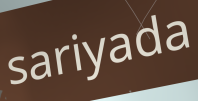
sariyada